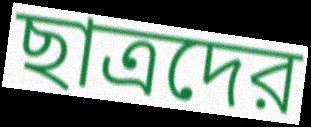
ছাত্রদের